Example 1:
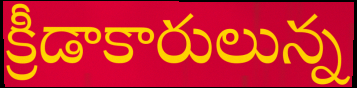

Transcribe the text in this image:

క్రీడాకారులున్న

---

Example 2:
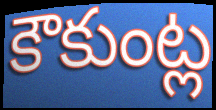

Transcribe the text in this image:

కౌకుంట్ల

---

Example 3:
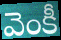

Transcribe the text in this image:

వెంకీ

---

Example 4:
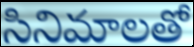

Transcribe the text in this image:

సినిమాలతో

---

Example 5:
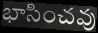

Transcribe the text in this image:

భాసించవు